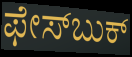
ಫೇಸ್‍ಬುಕ್